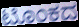
ಟೊಂಕದ